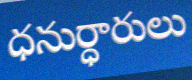
ధనుర్ధారులు